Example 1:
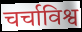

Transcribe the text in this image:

चर्चाविश्व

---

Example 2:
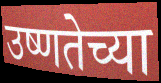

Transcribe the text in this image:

उष्णतेच्या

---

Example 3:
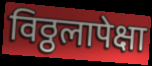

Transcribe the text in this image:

विठ्ठलापेक्षा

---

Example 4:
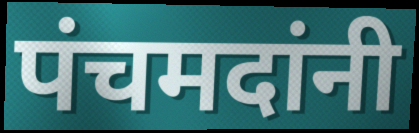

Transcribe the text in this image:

पंचमदांनी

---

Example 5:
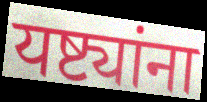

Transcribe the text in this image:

यष्ट्यांना